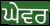
ਘੇਵਰ